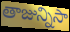
తాజున్నిసా